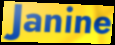
Janine